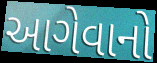
આગેવાનો